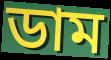
ডাম